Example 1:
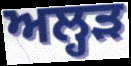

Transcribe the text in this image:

ਅਲ੍ਹੜ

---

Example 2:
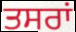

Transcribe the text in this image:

ਤਸਰਾਂ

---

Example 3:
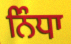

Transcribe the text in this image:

ਨਿੰਧਾ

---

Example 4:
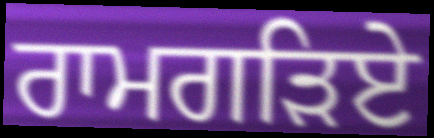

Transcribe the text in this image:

ਰਾਮਗੜਿਏ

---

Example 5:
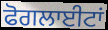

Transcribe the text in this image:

ਫੋਗਲਾਈਟਾਂ